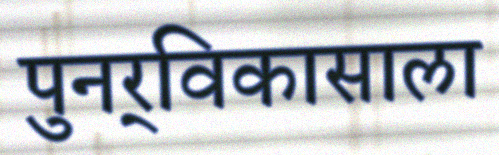
पुनर्विकासाला